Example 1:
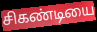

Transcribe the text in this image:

சிகண்டியை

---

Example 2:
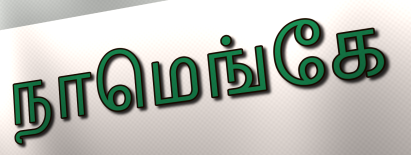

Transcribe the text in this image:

நாமெங்கே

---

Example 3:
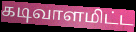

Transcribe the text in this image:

கடிவாளமிட்ட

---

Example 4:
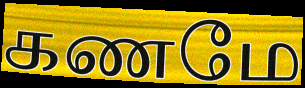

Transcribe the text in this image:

கணமே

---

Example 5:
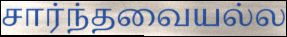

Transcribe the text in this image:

சார்ந்தவையல்ல